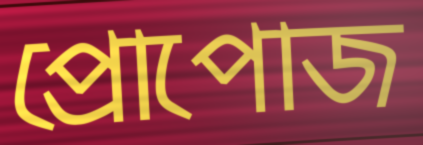
প্রোপোজ